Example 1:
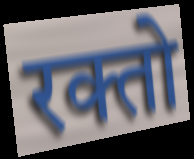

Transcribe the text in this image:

रक्तो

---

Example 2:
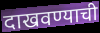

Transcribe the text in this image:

दाखवण्याची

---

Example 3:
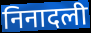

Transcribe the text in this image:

निनादली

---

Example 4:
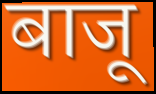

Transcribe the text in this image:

बाजू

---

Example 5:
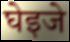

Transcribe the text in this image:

घेइजे